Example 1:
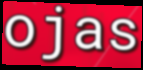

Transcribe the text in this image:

ojas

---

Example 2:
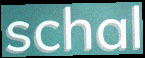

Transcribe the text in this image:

schal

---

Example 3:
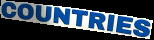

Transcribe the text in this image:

COUNTRIES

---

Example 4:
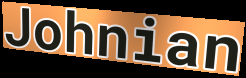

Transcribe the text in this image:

Johnian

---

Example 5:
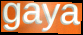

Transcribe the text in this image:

gaya